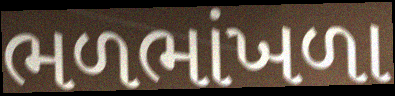
ભળભાંખળા